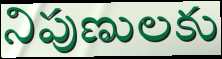
నిపుణులకు